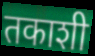
तकाशी